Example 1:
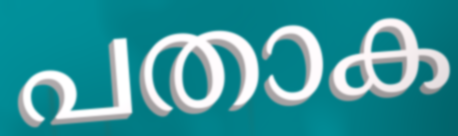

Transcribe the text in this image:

പതാക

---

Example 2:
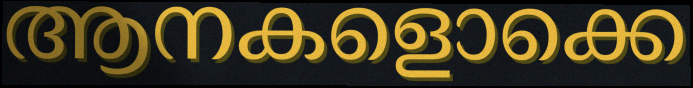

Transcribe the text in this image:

ആനകളൊക്കെ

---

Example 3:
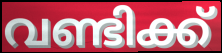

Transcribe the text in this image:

വണ്ടിക്ക്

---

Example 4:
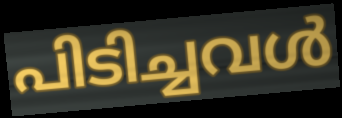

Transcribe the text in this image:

പിടിച്ചവൾ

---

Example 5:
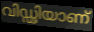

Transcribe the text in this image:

വിഡ്ഢിയാണ്